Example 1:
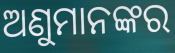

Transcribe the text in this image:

ଅଣୁମାନଙ୍କର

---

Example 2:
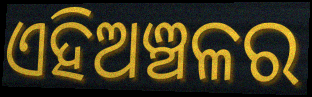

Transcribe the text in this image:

ଏହିଅଞ୍ଚଳର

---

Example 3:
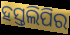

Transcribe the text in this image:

ହସ୍ତଲିପିର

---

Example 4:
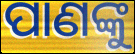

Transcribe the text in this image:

ପାଣଙ୍କୁ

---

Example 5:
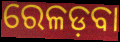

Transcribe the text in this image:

ରେଳଡ଼ବା